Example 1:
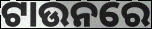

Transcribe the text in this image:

ଟାଉନରେ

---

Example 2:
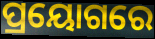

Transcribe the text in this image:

ପ୍ରୟୋଗରେ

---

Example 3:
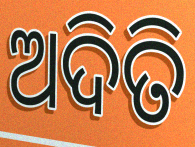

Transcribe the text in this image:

ଅଦିତି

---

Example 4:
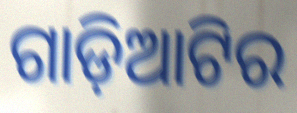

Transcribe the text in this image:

ଗାଡ଼ିଆଟିର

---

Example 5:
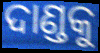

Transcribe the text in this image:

ଦାଣ୍ଡକୁ